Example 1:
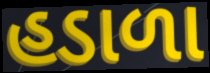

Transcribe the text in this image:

હડાળા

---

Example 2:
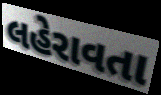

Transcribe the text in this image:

લહેરાવતા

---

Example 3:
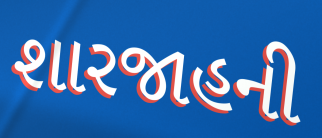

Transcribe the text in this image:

શારજાહની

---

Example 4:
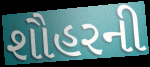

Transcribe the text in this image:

શૌહરની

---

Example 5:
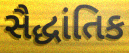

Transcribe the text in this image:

સૈદ્ધાંતિક